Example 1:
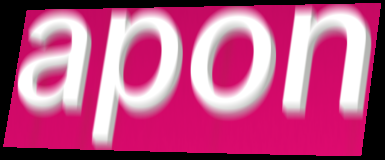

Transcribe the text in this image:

apon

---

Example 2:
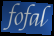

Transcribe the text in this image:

fofal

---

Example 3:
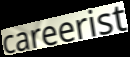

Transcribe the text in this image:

careerist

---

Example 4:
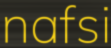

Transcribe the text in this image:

nafsi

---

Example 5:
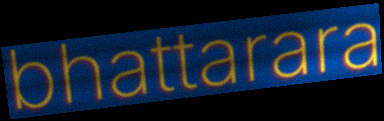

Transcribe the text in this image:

bhattarara